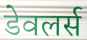
डेवलर्स